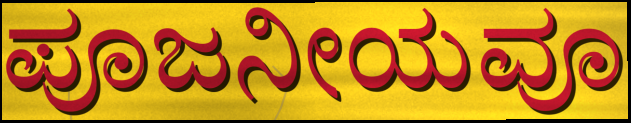
ಪೂಜನೀಯವೂ